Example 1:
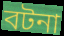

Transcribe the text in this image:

বটনা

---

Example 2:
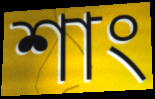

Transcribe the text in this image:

শাং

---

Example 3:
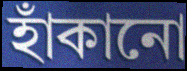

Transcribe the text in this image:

হাঁকানো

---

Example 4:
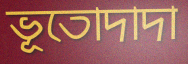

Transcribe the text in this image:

ভূতোদাদা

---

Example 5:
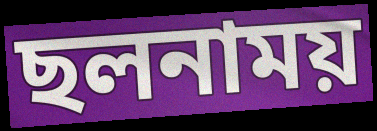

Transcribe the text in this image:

ছলনাময়